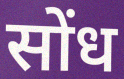
सोंध